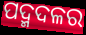
ପଦ୍ମଦଳର